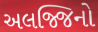
અલજ્જિનો